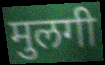
मुलगी